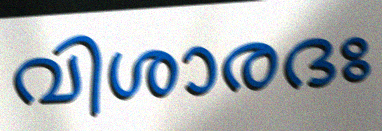
വിശാരദഃ